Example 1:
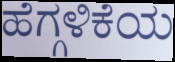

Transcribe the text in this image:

ಹೆಗ್ಗಳಿಕೆಯ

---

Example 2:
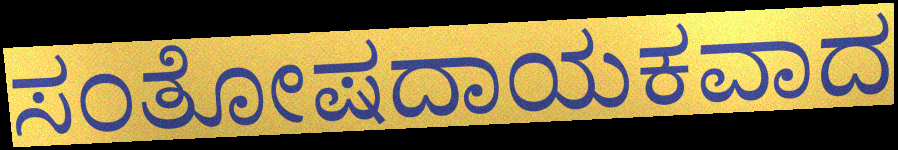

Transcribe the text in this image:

ಸಂತೋಷದಾಯಕವಾದ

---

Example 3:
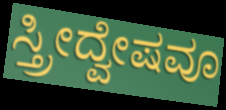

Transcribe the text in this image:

ಸ್ತ್ರೀದ್ವೇಷವೂ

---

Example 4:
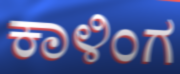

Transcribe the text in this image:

ಕಾಳಿಂಗ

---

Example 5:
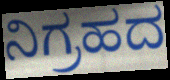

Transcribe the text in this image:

ನಿಗ್ರಹದ